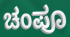
ಚಂಪೂ